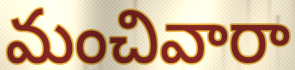
మంచివారా